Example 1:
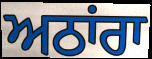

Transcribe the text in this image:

ਅਠਾਂਰਾ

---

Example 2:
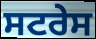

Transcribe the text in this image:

ਸਟਰੇਸ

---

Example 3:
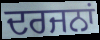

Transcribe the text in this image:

ਦਰਜਨਾਂ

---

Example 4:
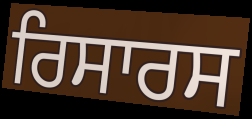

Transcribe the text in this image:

ਰਿਸਾਰਸ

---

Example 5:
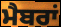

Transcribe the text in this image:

ਮੈਬਰਾਂ